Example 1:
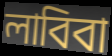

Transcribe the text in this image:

লাবিবা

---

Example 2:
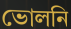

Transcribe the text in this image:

ভোলনি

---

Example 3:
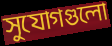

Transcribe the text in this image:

সুযোগগুলো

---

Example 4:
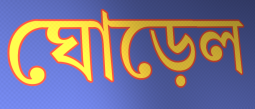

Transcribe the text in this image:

ঘোড়েল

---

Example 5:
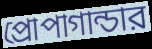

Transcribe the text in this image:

প্রোপাগান্ডার